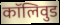
कॉलिवुड